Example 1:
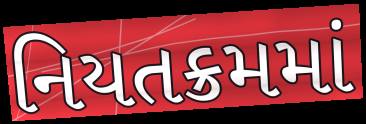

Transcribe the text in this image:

નિયતક્રમમાં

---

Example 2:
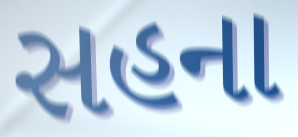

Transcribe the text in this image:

સહના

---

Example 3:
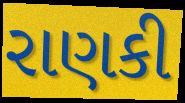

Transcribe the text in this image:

રાણકી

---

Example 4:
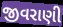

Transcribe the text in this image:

જીવરાણી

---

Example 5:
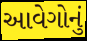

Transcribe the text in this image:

આવેગોનું